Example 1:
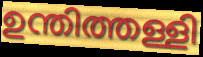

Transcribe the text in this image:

ഉന്തിത്തള്ളി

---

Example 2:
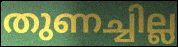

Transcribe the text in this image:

തുണച്ചില്ല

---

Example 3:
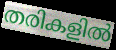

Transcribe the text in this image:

തരികളിൽ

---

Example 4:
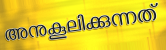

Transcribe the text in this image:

അനുകൂലിക്കുന്നത്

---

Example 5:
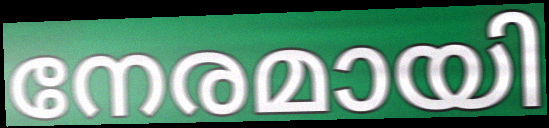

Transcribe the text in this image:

നേരമായി